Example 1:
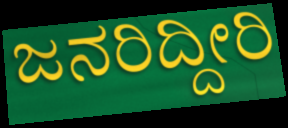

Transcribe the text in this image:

ಜನರಿದ್ದೀರಿ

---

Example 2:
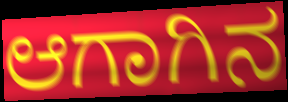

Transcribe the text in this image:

ಆಗಾಗಿನ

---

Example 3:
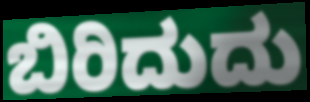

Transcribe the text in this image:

ಬಿರಿದುದು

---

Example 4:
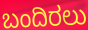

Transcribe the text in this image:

ಬಂದಿರಲು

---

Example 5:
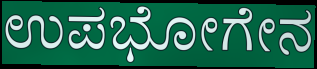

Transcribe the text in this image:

ಉಪಭೋಗೇನ